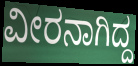
ವೀರನಾಗಿದ್ದ